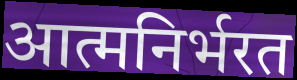
आत्मनिर्भरत